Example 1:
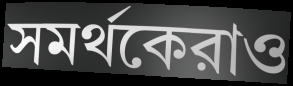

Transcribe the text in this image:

সমর্থকেরাও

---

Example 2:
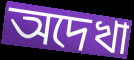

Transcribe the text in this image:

অদেখা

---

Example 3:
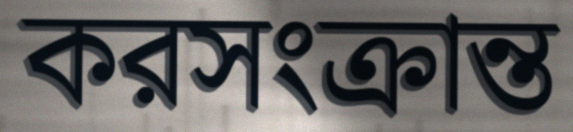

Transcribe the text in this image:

করসংক্রান্ত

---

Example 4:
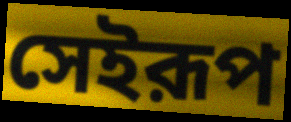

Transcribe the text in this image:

সেইরূপ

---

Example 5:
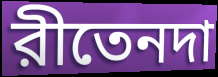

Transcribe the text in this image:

রীতেনদা